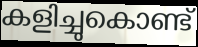
കളിച്ചുകൊണ്ട്